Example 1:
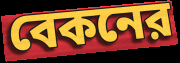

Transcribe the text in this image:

বেকনের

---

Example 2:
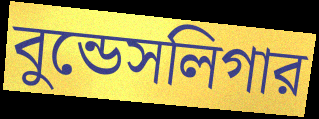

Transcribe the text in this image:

বুন্ডেসলিগার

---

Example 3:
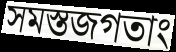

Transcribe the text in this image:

সমস্তজগতাং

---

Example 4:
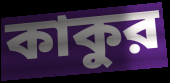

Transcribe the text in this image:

কাকুর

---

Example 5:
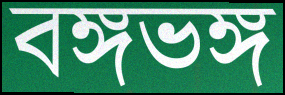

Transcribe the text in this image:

বঙ্গভঙ্গ